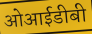
ओआईडीबी